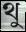
থু